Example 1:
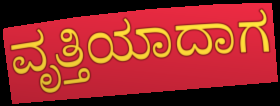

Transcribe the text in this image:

ವೃತ್ತಿಯಾದಾಗ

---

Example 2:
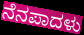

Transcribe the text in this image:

ನೆನಪಾದಳು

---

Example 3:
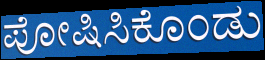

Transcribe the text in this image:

ಪೋಷಿಸಿಕೊಂಡು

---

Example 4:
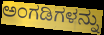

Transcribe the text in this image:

ಅಂಗಡಿಗಳನ್ನು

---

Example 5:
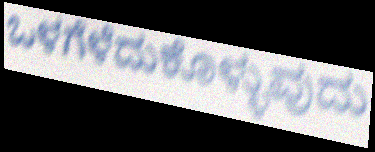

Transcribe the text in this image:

ಒಳಗೆಳೆದುಕೊಳ್ಳುವುದು